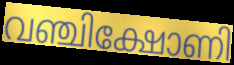
വഞ്ചിക്ഷോണി